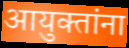
आयुक्‍तांना